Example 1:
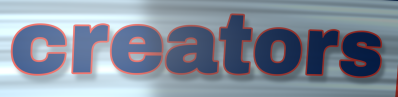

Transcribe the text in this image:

creators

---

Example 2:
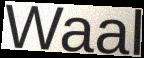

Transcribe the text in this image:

Waal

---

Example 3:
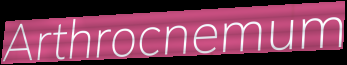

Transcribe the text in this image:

Arthrocnemum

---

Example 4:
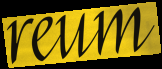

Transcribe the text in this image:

reum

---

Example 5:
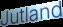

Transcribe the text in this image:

Jutland